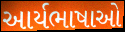
આર્યભાષાઓ